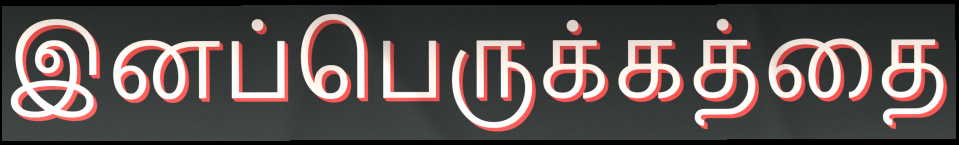
இனப்பெருக்கத்தை